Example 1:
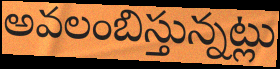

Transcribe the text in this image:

అవలంబిస్తున్నట్లు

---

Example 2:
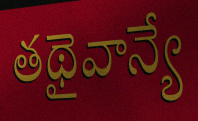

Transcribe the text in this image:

తథైవాన్యే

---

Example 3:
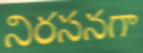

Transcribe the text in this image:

నిరసనగా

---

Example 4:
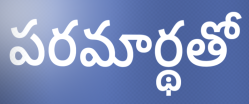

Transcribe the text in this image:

పరమార్థతో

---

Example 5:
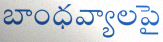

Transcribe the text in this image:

బాంధవ్యాలపై